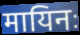
मायिनः